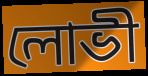
লোভী